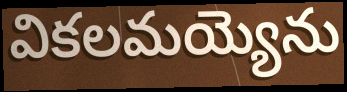
వికలమయ్యెను